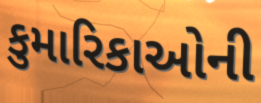
કુમારિકાઓની